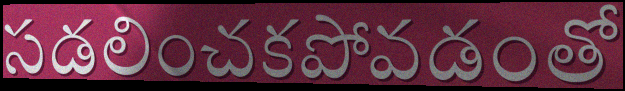
సడలించకపోవడంతో